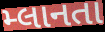
મ્લાનતા